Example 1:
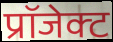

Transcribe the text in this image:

प्रॉजेक्‍ट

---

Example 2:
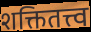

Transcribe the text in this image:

शक्तितत्त्व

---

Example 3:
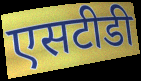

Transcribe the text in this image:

एसटीडी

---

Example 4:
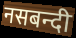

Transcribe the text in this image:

नसबन्दी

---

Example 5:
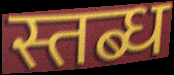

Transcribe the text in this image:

स्तब्ध